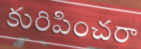
కురిపించరా